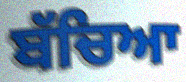
ਬੱਚਿਆ